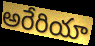
అరేరియా